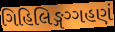
ગિહિલિઙ્ગગ્ગહણં